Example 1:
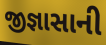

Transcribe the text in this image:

જીજ્ઞાસાની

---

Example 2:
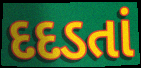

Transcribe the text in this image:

દદડતાં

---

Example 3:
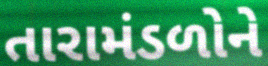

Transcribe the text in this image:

તારામંડળોને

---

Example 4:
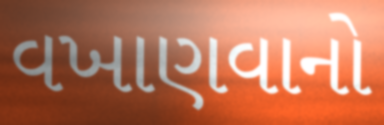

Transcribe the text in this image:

વખાણવાનો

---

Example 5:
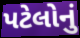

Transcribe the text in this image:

પટેલોનું